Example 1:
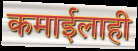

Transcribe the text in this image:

कमाईलाही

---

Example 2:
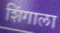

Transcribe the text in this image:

शिंगाला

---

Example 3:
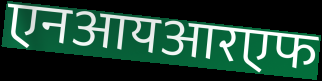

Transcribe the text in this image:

एनआयआरएफ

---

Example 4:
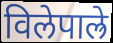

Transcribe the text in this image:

विलेपाल्रे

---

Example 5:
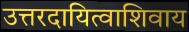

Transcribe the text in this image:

उत्तरदायित्वाशिवाय